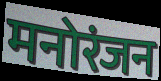
मनोरंजन